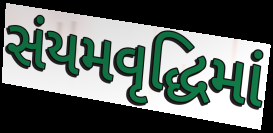
સંયમવૃદ્ધિમાં